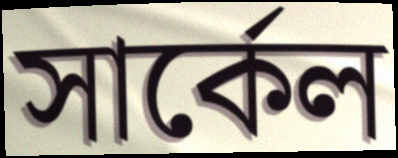
সার্কেল